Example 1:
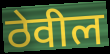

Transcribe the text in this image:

ठेवील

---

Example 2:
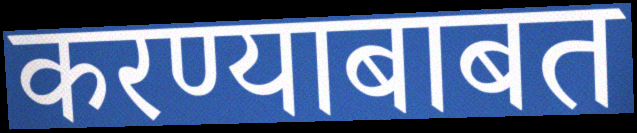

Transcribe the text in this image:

करण्याबाबत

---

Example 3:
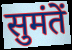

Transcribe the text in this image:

सुमंतें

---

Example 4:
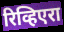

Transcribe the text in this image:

रिव्हिएरा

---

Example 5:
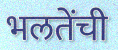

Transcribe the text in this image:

भलतेंची